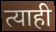
त्याही